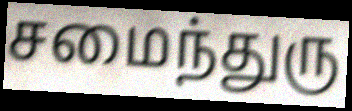
சமைந்துரு